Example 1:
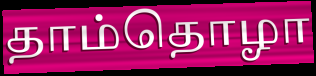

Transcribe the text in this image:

தாம்தொழா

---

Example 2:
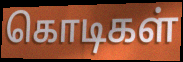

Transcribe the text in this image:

கொடிகள்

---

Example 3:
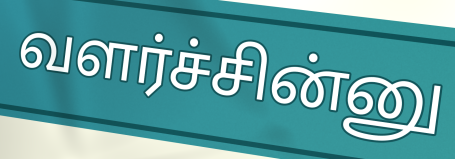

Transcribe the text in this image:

வளர்ச்சின்னு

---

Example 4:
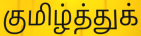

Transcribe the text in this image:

குமிழ்த்துக்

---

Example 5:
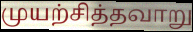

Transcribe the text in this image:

முயற்சித்தவாறு